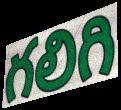
గలిగి